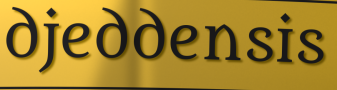
djeddensis